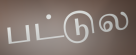
பட்டுல